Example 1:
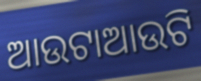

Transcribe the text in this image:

ଆଉଟାଆଉଟି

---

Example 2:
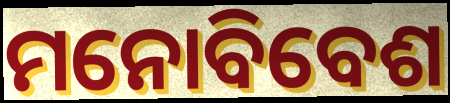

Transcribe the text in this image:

ମନୋବିବେଶ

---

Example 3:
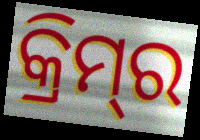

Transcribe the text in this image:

କ୍ରିମ୍‌ର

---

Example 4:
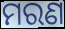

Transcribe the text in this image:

ମରଣ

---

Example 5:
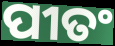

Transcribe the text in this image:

ପୀତଂ